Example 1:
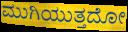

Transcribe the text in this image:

ಮುಗಿಯುತ್ತದೋ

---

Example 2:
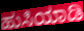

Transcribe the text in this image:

ಹುಸಿಯಾಡಿ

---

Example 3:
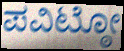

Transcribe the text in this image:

ಪವಿಟ್ಠೋ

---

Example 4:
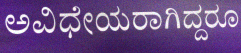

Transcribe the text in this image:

ಅವಿಧೇಯರಾಗಿದ್ದರೂ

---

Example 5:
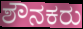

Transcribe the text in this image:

ಶೌನಕರು